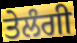
ਤੇਲੰਗੀ